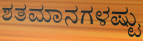
ಶತಮಾನಗಳಷ್ಟು